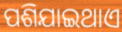
ପଶିଯାଇଥାଏ